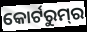
କୋର୍ଟରୁମ୍‌ର